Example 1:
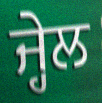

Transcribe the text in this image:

ਜ੍ਹੇਲ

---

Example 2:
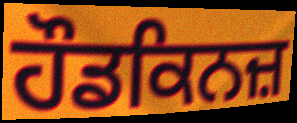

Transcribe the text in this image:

ਹੌਡਕਿਨਜ਼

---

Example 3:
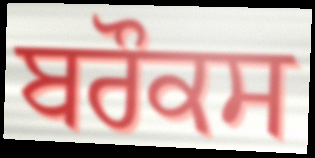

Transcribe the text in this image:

ਬਰੌਕਸ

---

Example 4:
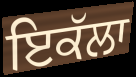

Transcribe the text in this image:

ਇਕੱਲਾ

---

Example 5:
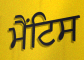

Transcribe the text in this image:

ਮੈਂਟਿਸ